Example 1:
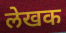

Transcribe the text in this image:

लेखक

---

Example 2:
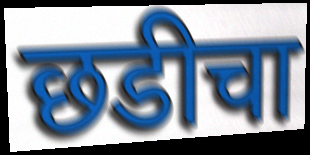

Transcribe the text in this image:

छडीचा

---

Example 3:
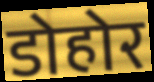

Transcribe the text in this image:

डोहोर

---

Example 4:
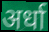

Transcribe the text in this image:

अर्धा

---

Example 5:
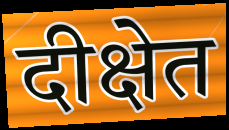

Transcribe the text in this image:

दीक्षेत